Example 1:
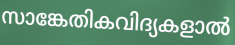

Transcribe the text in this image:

സാങ്കേതികവിദ്യകളാൽ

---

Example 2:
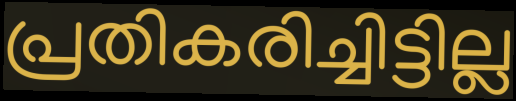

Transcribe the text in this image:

പ്രതികരിച്ചിട്ടില്ല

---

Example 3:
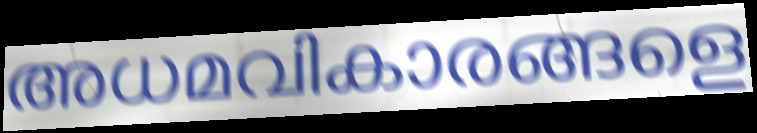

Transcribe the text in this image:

അധമവികാരങ്ങളെ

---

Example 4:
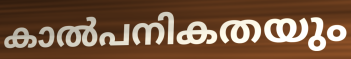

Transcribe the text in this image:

കാൽപനികതയും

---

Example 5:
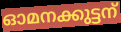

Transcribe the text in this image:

ഓമനക്കുട്ടന്